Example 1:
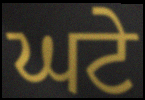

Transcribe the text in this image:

ਘਟੇ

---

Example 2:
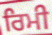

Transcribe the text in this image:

ਰਿਮੀ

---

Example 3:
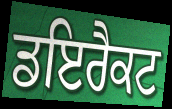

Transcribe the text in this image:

ਡਇਰੈਕਟ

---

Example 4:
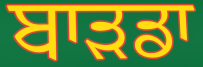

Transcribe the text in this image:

ਬਾੜਡਾ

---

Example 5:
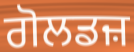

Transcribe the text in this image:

ਗੋਲਡਜ਼